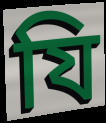
যি